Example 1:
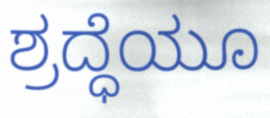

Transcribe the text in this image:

ಶ್ರದ್ಧೆಯೂ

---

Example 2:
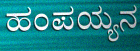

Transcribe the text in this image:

ಹಂಪಯ್ಯನ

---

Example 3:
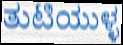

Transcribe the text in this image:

ತುಟಿಯುಳ್ಳ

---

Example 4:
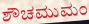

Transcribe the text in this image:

ಶೌಚಮುಮಂ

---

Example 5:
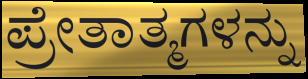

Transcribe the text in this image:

ಪ್ರೇತಾತ್ಮಗಳನ್ನು